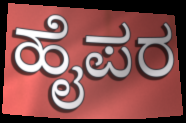
ಹೈಪರ